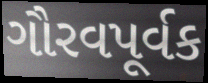
ગૌરવપૂર્વક